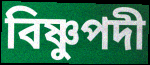
বিষ্ণুপদী